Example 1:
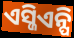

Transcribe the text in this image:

ଏସ୍ଜିଏନ୍ପି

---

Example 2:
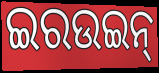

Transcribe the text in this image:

ଇରଉଇନ୍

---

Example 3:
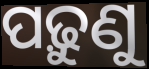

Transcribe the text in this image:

ପଢ଼ୁଣୁ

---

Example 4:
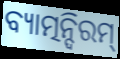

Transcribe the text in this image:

ବ୍ୟାତ୍ମନ୍ଦିରମ୍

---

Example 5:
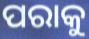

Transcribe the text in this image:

ପରାକୁ